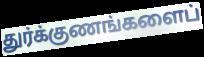
துர்க்குணங்களைப்